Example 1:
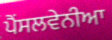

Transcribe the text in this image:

ਪੈਂਸਲਵੇਨੀਆ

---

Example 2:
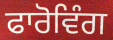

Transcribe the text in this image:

ਫਾਰੋਵਿੰਗ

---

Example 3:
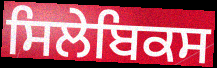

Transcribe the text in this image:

ਸਿਲੇਬਿਕਸ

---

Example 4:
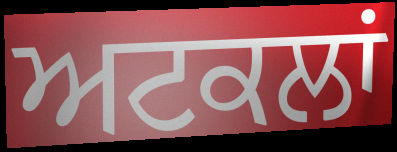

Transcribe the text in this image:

ਅਟਕਲਾਂ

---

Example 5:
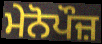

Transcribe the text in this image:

ਮੇਨੋਪੌਜ਼